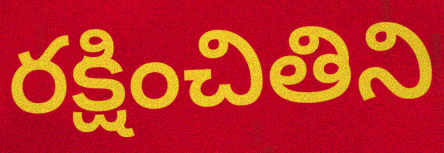
రక్షించితిని